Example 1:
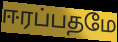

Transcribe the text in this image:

ஈரப்பதமே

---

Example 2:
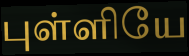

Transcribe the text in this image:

புள்ளியே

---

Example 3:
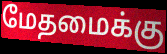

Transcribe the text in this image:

மேதமைக்கு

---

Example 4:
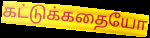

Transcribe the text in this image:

கட்டுக்கதையோ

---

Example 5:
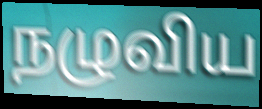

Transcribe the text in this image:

நழுவிய